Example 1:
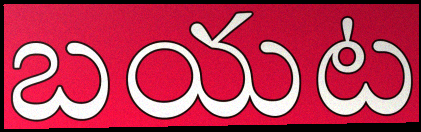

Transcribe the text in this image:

బయట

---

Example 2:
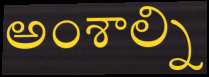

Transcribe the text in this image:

అంశాల్ని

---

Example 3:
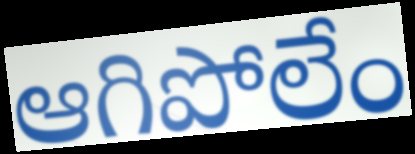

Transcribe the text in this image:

ఆగిపోలేం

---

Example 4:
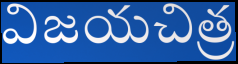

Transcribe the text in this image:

విజయచిత్ర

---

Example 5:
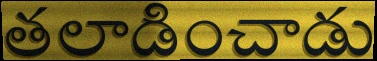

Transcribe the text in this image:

తలాడించాడు